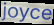
joyce